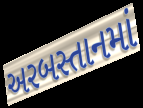
અરબસ્તાનમાં